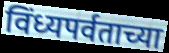
विंध्यपर्वताच्या